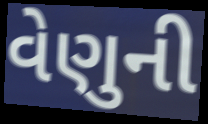
વેણુની